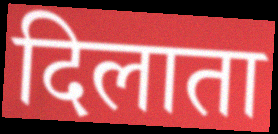
दिलाता